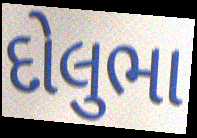
દોલુભા